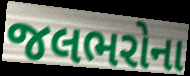
જલભરોના